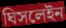
ঘিসলেইন